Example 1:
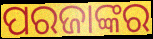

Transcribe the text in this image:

ପରଜାଙ୍କର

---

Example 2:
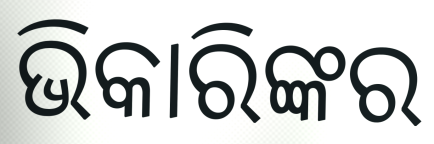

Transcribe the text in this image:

ଭିକାରିଙ୍କର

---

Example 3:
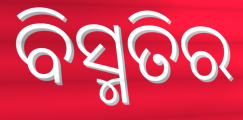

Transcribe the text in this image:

ବିସ୍ମତିର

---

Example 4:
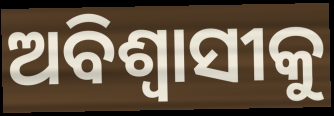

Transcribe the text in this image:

ଅବିଶ୍ୱାସୀକୁ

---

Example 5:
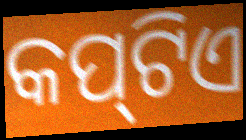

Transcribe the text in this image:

କପ୍‍ଟିଏ